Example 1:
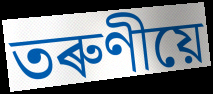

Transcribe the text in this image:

তৰুণীয়ে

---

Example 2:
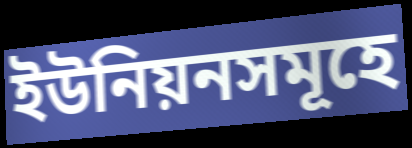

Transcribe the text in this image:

ইউনিয়নসমূহে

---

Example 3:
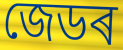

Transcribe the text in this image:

জেডৰ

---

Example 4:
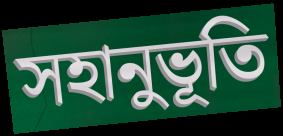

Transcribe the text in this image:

সহানুভূতি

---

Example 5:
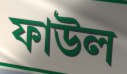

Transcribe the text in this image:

ফাউল